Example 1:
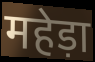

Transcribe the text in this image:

महेड़ा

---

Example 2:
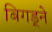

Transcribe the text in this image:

बिगड्ने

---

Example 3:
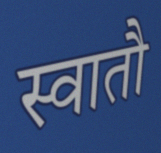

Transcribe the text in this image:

स्वातौ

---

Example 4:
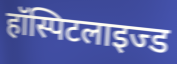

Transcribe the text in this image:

हॉस्पिटलाइज्ड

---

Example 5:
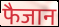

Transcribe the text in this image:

फैजान